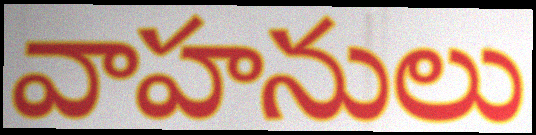
వాహనులు